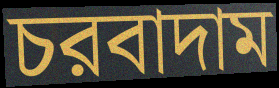
চরবাদাম